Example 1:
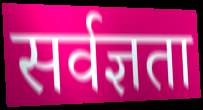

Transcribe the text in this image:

सर्वज्ञता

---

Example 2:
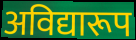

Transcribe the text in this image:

अविद्यारूप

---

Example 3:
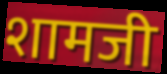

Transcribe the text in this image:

शामजी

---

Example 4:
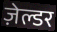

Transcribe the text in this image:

ज़ेल्डर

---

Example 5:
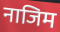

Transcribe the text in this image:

नाजिम